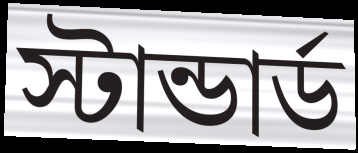
স্টান্ডার্ড